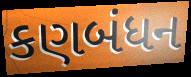
કણબંધન